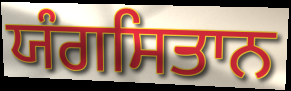
ਯੰਗਸਿਤਾਨ